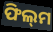
ଫିଲ୍‌ମ